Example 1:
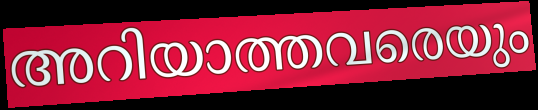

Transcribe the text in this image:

അറിയാത്തവരെയും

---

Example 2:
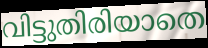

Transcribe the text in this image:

വിട്ടുതിരിയാതെ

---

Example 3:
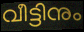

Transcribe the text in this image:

വീട്ടിനും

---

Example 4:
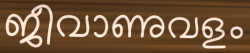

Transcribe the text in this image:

ജീവാണുവളം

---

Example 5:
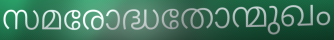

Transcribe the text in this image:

സമരോദ്ധതോന്മുഖം